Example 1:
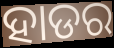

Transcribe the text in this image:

ହାଡର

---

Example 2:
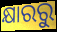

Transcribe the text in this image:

କ୍ଷାରରୁ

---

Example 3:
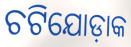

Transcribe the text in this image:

ଚଟିଯୋଡ଼ାକ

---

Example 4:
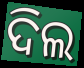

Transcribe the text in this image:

ଦିଲ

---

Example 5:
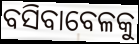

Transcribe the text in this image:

ବସିବାବେଳକୁ